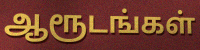
ஆரூடங்கள்